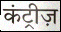
कंट्रीज़